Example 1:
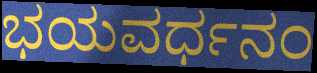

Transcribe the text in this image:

ಭಯವರ್ಧನಂ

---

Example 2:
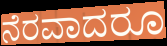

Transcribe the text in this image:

ನೆರವಾದರೂ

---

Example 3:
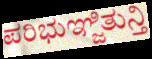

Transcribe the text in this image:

ಪರಿಭುಞ್ಜಿತುನ್ತಿ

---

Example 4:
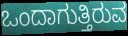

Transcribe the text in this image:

ಒಂದಾಗುತ್ತಿರುವ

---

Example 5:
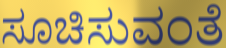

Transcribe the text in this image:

ಸೂಚಿಸುವಂತೆ